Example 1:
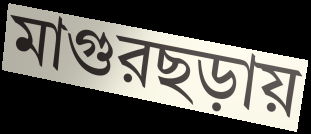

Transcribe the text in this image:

মাগুরছড়ায়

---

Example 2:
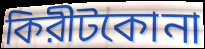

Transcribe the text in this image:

কিরীটকোনা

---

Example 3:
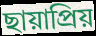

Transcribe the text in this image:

ছায়াপ্রিয়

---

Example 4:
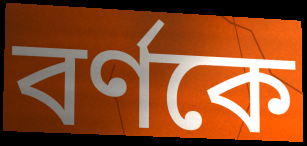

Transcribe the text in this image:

বর্ণকে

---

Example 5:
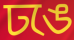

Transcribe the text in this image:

ঢঙে